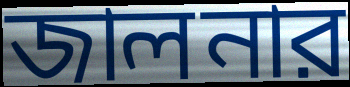
জালনার